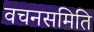
वचनसमिति